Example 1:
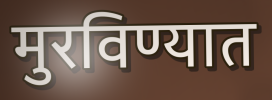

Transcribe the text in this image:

मुरविण्यात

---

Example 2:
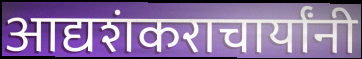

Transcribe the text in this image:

आद्यशंकराचार्यांनी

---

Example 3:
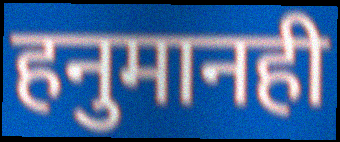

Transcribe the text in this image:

हनुमानही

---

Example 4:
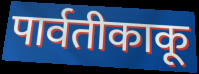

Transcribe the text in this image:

पार्वतीकाकू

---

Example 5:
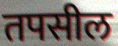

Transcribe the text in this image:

तपसील